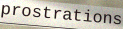
prostrations